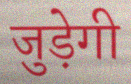
जुड़ेगी